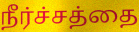
நீர்ச்சத்தை